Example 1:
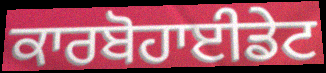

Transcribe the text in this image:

ਕਾਰਬੋਹਾਈਡੇਟ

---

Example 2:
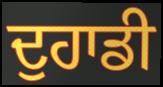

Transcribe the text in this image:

ਦੁਹਾਡੀ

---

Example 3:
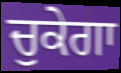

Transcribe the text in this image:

ਚੁਕੇਗਾ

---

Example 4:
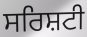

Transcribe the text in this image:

ਸਰਿਸ਼ਟੀ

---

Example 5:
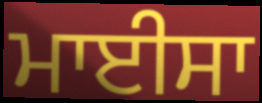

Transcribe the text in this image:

ਮਾਈਸਾ